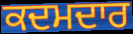
ਕਦਮਦਾਰ